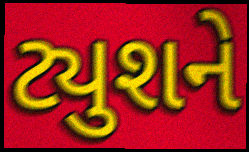
ટ્યુશને